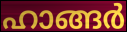
ഹാങ്ങർ